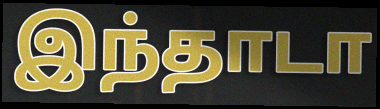
இந்தாடா